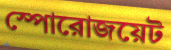
স্পোরোজয়েট